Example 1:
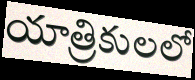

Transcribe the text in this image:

యాత్రికులలో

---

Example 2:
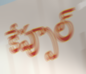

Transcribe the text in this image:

కేప్సూల్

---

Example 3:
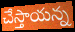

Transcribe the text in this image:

చేస్తాయన్న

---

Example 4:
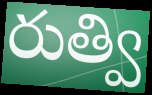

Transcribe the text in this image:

రుత్వి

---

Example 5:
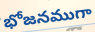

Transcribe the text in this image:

భోజనముగా